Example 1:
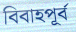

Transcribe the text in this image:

বিবাহপূর্ব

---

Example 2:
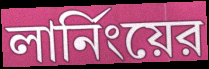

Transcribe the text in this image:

লার্নিংয়ের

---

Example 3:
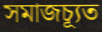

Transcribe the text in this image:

সমাজচ্যূত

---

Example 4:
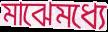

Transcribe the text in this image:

মাঝেমধ্যে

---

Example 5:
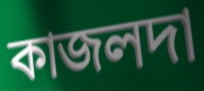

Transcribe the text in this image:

কাজলদা